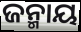
ଜନ୍ମାୟ